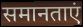
समानताएं